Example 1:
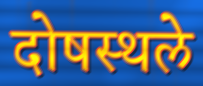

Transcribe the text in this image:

दोषस्थले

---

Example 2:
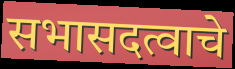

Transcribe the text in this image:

सभासदत्वाचे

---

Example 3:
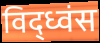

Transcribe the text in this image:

विद्ध्वंस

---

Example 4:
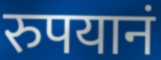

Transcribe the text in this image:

रुपयानं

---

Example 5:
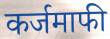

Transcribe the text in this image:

कर्जमाफी